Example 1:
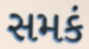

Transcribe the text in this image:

સમકં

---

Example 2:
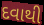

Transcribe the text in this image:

દવાથી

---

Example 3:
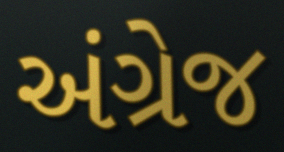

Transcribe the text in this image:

અંગ્રેજ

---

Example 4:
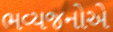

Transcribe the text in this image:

ભવ્યજનોએ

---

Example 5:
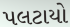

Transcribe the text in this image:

પલટાયો